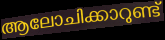
ആലോചിക്കാറുണ്ട്